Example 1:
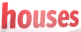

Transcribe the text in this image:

houses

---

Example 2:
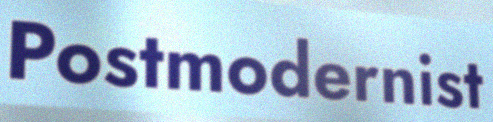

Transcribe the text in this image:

Postmodernist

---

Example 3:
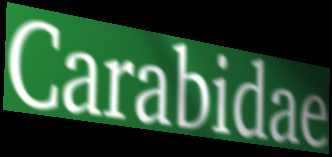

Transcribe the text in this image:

Carabidae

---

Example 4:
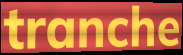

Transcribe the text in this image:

tranche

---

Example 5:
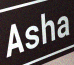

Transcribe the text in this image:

Asha